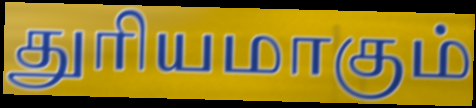
துரியமாகும்